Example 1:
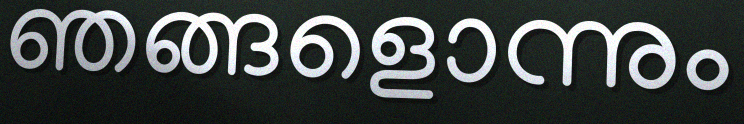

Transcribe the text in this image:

ഞങ്ങളൊന്നും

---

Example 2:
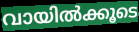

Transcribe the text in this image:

വായിൽക്കൂടെ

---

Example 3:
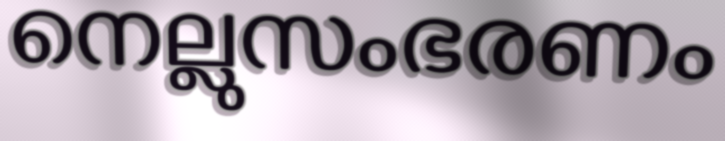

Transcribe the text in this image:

നെല്ലുസംഭരണം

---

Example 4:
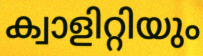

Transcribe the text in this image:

ക്വാളിറ്റിയും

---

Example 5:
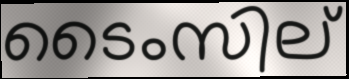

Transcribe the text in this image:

ടൈംസില്